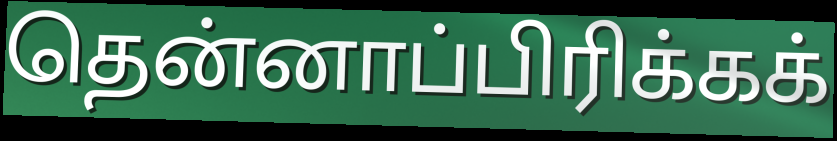
தென்னாப்பிரிக்கக்